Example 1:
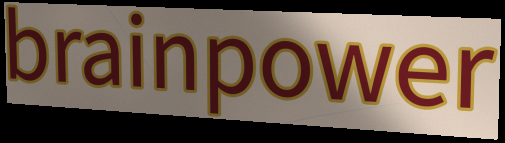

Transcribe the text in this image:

brainpower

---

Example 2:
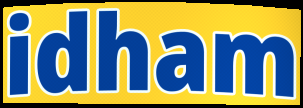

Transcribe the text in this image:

idham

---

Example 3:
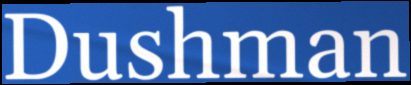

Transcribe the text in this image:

Dushman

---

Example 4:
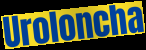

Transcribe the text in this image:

Uroloncha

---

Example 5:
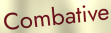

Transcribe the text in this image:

Combative